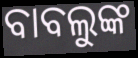
ବାବଲୁଙ୍କ